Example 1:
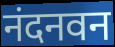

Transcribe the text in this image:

नंदनवन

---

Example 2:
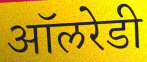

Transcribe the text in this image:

ऑलरेडी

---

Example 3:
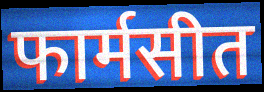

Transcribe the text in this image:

फार्मसीत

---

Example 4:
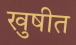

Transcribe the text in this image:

खुषीत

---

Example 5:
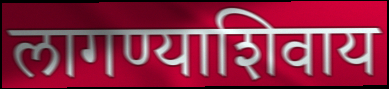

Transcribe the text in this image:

लागण्याशिवाय